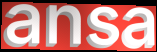
ansa